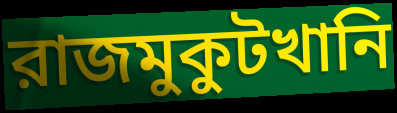
রাজমুকুটখানি